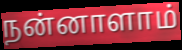
நன்னாளாம்